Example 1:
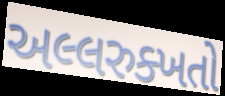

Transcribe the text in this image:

અલ્લરુક્ખતો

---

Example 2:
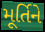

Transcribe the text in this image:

મૂર્તિને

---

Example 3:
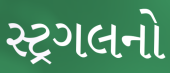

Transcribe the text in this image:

સ્ટ્રગલનો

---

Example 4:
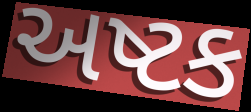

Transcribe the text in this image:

અષ્ટક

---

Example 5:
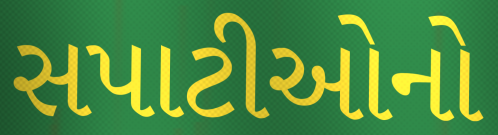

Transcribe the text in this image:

સપાટીઓનો